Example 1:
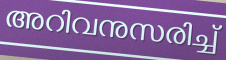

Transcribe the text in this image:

അറിവനുസരിച്ച്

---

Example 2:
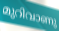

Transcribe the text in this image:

മുറിവാണു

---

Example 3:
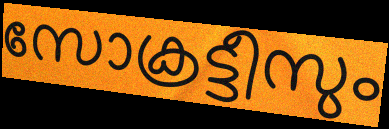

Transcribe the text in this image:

സോക്രട്ടീസും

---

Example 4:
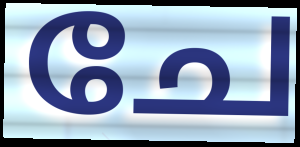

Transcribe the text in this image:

ചേ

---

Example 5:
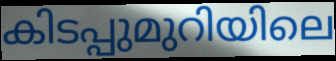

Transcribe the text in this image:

കിടപ്പുമുറിയിലെ